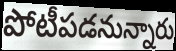
పోటీపడనున్నారు